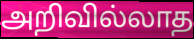
அறிவில்லாத